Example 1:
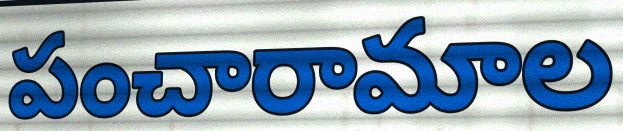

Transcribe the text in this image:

పంచారామాల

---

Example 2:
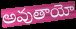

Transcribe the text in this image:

అవుతాయో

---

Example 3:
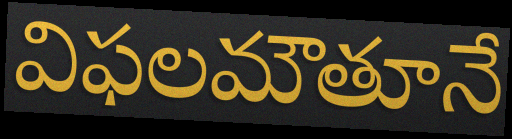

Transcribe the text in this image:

విఫలమౌతూనే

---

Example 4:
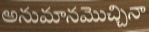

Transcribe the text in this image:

అనుమానమొచ్చినా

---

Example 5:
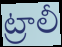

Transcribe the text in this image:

ట్రాలీ